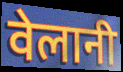
वेलानी